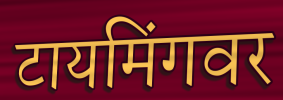
टायमिंगवर